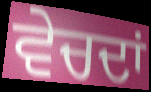
ਵੇਚਦਾਂ